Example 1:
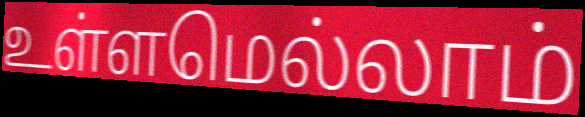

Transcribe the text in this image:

உள்ளமெல்லாம்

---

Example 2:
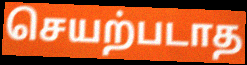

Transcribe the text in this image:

செயற்படாத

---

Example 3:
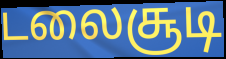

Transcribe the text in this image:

டலைசூடி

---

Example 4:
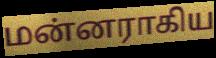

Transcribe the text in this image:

மன்னராகிய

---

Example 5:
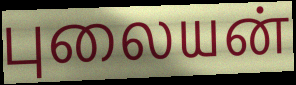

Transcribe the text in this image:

புலையன்